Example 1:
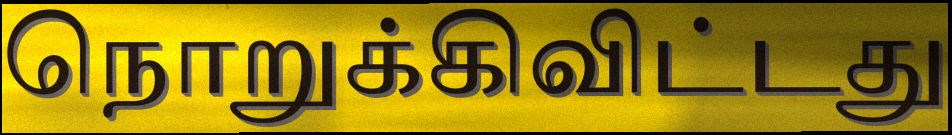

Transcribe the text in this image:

நொறுக்கிவிட்டது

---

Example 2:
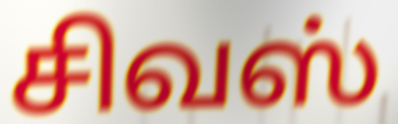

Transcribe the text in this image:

சிவஸ்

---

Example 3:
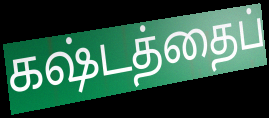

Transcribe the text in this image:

கஷ்டத்தைப்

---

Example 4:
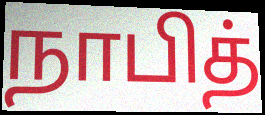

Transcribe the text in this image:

நாபித்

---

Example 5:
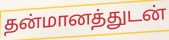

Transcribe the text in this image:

தன்மானத்துடன்